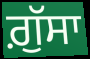
ਗ਼ੁੱਸਾ